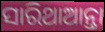
ସାରିଥାଆନ୍ତା